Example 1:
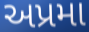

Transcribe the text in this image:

અપ્રમા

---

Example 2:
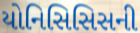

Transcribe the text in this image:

યોનિસિસિસની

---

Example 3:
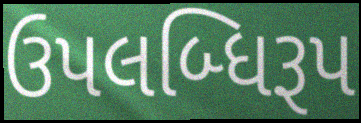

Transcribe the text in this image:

ઉપલબ્ધિરૂપ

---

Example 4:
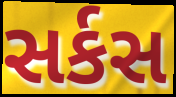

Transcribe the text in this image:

સર્કસ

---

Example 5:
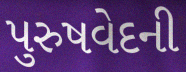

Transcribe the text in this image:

પુરુષવેદની